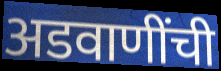
अडवाणींची